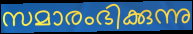
സമാരംഭിക്കുന്നു